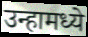
उन्हामध्ये